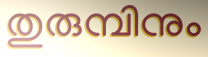
തുരുമ്പിനും